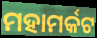
ମହାମର୍କଟ